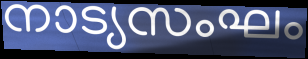
നാട്യസംഘം